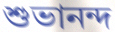
শুভানন্দ